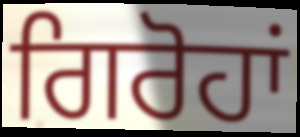
ਗਿਰੋਹਾਂ